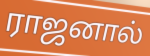
ராஜனால்